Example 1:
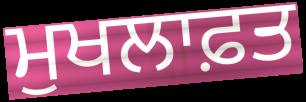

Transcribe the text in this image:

ਮੁਖਲਾਫ਼ਤ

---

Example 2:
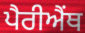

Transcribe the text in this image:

ਪੈਰੀਐਂਥ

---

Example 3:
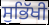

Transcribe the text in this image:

ਸੁਭਿੱਖੀ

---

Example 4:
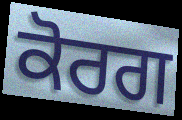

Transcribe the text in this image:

ਕੋਰਗ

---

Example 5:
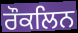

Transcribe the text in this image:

ਰੌਕਲਿਨ